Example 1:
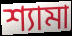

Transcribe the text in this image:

শ্যামা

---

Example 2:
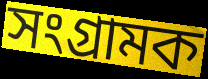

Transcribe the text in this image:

সংগ্ৰামক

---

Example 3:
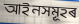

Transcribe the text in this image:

আইনসমূহৰ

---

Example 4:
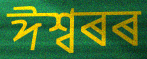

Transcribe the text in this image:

ঈশ্বৰৰ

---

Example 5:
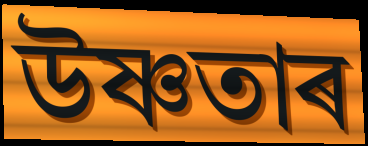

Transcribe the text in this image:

উষ্ণতাৰ